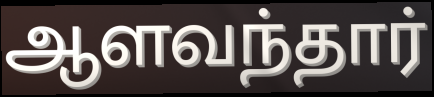
ஆளவந்தார்